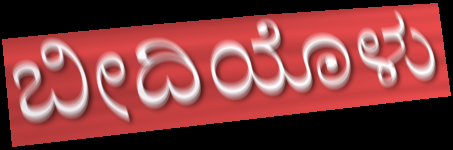
ಬೀದಿಯೊಳು